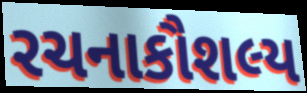
રચનાકૌશલ્ય